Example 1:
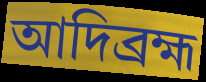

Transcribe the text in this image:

আদিব্রহ্ম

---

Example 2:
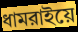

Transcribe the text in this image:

ধামরাইয়ে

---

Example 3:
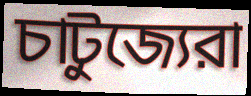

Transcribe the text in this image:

চাটুজ্যেরা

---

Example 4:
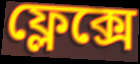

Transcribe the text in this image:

ফ্লেক্সে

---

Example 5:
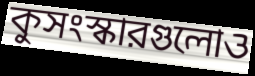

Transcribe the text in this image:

কুসংস্কারগুলোও